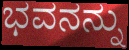
ಭವನನ್ನು